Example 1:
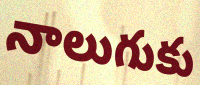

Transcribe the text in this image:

నాలుగుకు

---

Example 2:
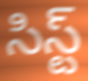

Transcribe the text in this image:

సిస్ట్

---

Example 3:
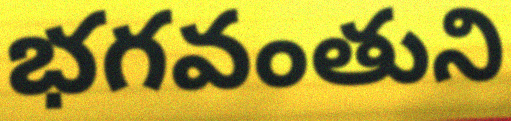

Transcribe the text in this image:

భగవంతుని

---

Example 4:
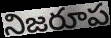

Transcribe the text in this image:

నిజరూప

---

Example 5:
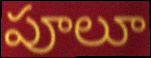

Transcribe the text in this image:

పూలూ